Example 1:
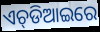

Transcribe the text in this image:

ଏଚ୍‌ଡିଆଇରେ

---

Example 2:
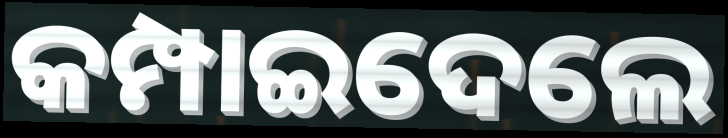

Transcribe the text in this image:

କମ୍ପାଇଦେଲେ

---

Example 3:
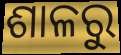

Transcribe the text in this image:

ଶାଳରୁ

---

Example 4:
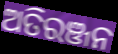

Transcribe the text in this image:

ଅତିରଞ୍ଜନ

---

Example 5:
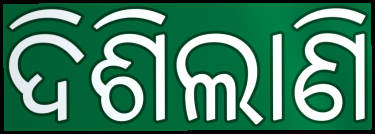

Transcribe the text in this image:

ଦିଶିଲାଣି